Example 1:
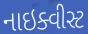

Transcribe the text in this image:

નાઇક્વીસ્ટ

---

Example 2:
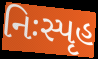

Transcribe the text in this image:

નિઃસ્પૃહ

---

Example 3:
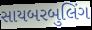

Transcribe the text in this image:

સાયબરબુલિંગ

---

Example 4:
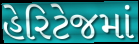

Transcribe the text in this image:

હેરિટેજમાં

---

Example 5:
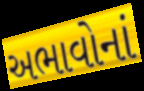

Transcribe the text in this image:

અભાવોનાં